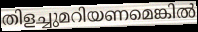
തിളച്ചുമറിയണമെങ്കിൽ